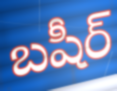
బషీర్